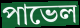
পাভেল